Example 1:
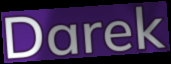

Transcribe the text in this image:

Darek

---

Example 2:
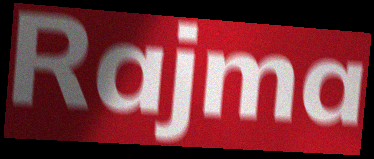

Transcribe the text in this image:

Rajma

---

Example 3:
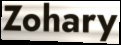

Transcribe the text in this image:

Zohary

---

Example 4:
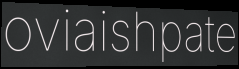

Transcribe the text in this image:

oviaishpate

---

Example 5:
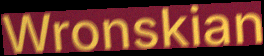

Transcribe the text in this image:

Wronskian